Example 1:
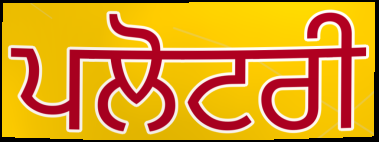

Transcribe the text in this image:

ਪਲੋਟਰੀ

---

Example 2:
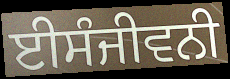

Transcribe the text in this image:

ਈਸੰਜੀਵਨੀ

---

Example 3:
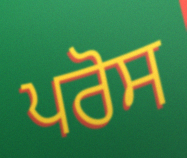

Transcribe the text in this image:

ਪਰੋਸ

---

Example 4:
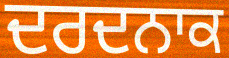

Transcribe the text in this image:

ਦਰਦਨਾਕ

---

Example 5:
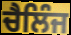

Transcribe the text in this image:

ਚੈਲਿੰਜ